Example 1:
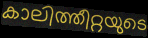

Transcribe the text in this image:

കാലിത്തീറ്റയുടെ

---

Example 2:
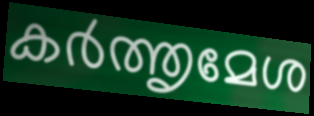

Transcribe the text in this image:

കർത്തൃമേശ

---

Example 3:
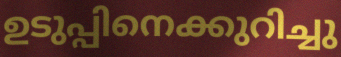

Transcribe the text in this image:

ഉടുപ്പിനെക്കുറിച്ചു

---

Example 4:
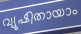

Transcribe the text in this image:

വ്യുഷിതായാം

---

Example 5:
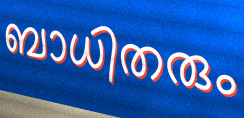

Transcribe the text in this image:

ബാധിതരും